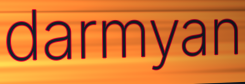
darmyan